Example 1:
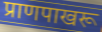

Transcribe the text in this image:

प्राणपाखरू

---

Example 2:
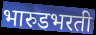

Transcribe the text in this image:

भारुडभरती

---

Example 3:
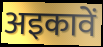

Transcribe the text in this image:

अइकावें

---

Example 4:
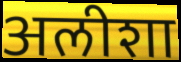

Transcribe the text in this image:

अलीशा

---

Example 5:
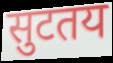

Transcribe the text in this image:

सुटतय